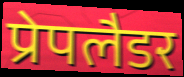
प्रेपलैडर